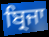
ਬ੍ਰਿਜਾ